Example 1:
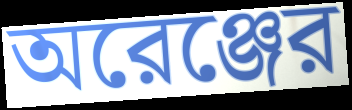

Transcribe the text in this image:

অরেঞ্জের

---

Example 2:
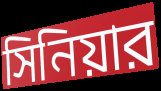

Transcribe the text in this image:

সিনিয়ার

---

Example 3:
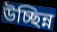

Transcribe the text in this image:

উচ্ছিন্ন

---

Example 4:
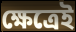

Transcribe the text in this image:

ক্ষেত্রেই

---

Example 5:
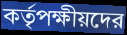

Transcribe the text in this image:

কর্তৃপক্ষীয়দের